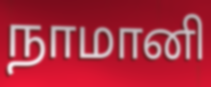
நாமானி